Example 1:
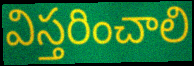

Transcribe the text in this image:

విస్తరించాలి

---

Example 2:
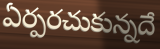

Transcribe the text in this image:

ఏర్పరచుకున్నదే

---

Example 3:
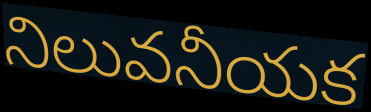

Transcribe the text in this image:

నిలువనీయక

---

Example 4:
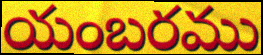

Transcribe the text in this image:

యంబరము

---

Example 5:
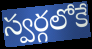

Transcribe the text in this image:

స్వర్గలోకే